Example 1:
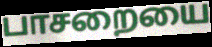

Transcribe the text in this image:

பாசறையை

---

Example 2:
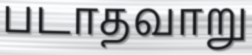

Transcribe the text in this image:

படாதவாறு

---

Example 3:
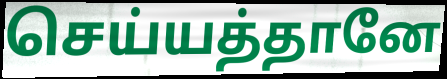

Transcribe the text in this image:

செய்யத்தானே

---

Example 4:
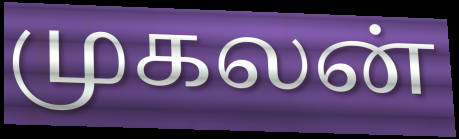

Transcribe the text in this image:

முகலன்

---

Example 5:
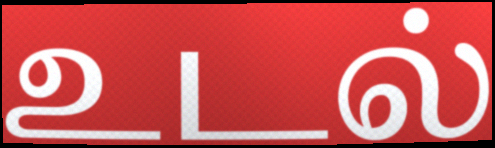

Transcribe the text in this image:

உடல்